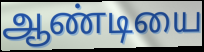
ஆண்டியை